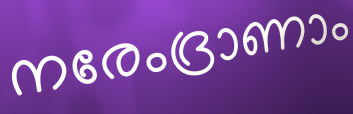
നരേംദ്രാണാം